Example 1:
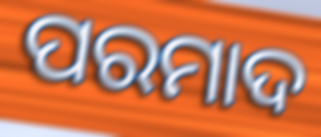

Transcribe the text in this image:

ପରମାଦ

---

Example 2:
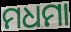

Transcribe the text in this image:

ମଧମା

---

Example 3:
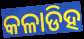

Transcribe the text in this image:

କଳାଡିହ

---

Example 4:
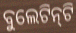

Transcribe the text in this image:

ବୁଲେଟିନ୍‍ଟି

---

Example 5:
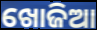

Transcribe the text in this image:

ଖୋଜିଆ